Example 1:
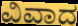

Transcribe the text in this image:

ವಿವಾದ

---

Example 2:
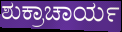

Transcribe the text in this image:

ಶುಕ್ರಾಚಾರ್ಯ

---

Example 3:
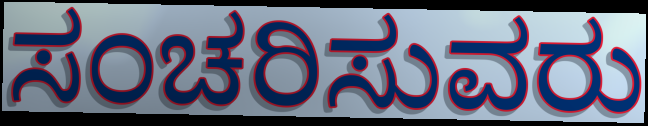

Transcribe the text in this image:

ಸಂಚರಿಸುವರು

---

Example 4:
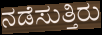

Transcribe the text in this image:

ನಡೆಸುತ್ತಿರು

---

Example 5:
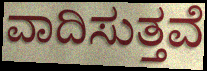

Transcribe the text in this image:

ವಾದಿಸುತ್ತವೆ